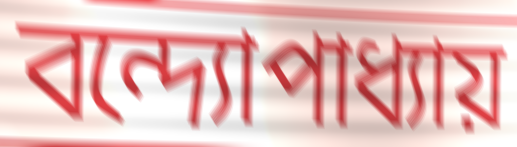
বন্দ্যোপাধ্যায়